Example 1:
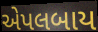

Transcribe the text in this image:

એપલબાય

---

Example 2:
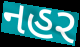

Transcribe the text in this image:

નહર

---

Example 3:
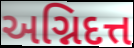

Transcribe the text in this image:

અગ્નિદત્ત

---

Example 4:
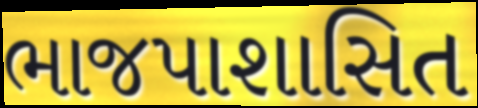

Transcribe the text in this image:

ભાજપાશાસિત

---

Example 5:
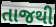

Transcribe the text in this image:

તાજથી